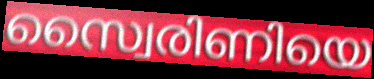
സ്വൈരിണിയെ